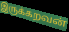
இருக்கறவன்